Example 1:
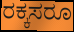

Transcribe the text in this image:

ರಕ್ಕಸರೂ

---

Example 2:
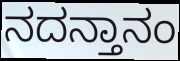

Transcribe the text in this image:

ನದನ್ತಾನಂ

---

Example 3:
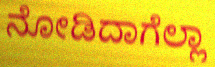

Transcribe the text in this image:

ನೋಡಿದಾಗೆಲ್ಲಾ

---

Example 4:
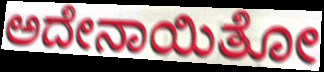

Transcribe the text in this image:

ಅದೇನಾಯಿತೋ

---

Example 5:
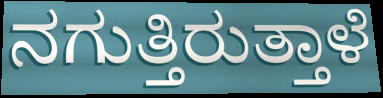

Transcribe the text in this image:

ನಗುತ್ತಿರುತ್ತಾಳೆ